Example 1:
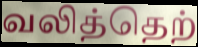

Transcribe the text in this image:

வலித்தெற்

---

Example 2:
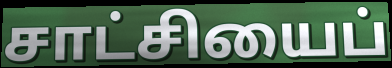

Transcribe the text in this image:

சாட்சியைப்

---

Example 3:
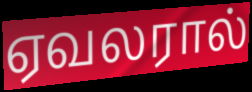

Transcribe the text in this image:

ஏவலரால்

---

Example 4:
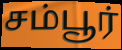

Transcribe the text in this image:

சம்பூர்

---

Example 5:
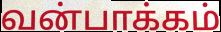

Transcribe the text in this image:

வன்பாக்கம்